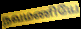
நவமணியே